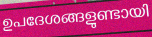
ഉപദേശങ്ങളുണ്ടായി